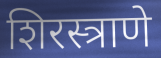
शिरस्त्राणे